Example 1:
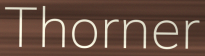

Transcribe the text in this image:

Thorner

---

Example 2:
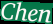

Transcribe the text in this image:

Chen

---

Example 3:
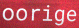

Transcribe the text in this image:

oorige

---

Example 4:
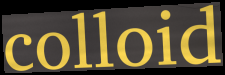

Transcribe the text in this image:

colloid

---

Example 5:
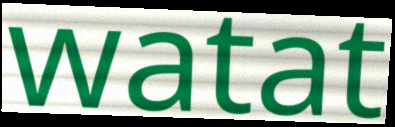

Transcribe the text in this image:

watat